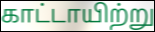
காட்டாயிற்று